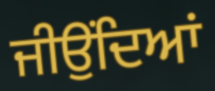
ਜੀਉਂਦਿਆਂ